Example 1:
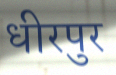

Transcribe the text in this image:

धीरपुर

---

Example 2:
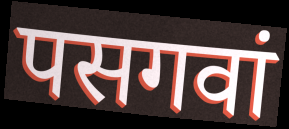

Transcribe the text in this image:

पसगवां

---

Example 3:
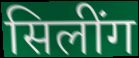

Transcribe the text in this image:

सिलींग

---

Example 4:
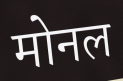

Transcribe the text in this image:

मोनल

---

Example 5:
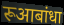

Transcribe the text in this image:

रूआबांधा